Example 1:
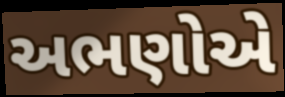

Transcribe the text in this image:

અભણોએ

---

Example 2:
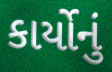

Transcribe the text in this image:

કાર્યોનું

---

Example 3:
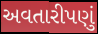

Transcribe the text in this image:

અવતારીપણું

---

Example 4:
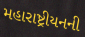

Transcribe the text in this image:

મહારાષ્ટ્રીયનની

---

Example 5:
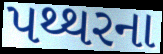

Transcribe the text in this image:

પથ્થરના